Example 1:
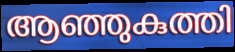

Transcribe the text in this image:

ആഞ്ഞുകുത്തി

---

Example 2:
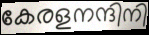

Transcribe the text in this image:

കേരളനന്ദിനി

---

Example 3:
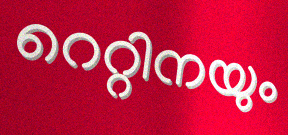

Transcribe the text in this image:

റെറ്റിനയും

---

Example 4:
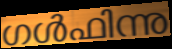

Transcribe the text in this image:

ഗൾഫിന്നു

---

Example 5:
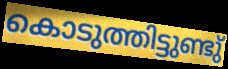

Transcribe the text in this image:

കൊടുത്തിട്ടുണ്ടു്